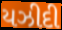
યઝીદી